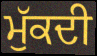
ਮੁੱਕਦੀ